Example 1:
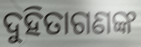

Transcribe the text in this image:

ଦୁହିତାଗଣଙ୍କ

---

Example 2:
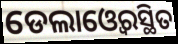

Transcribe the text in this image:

ଡେଲାଓ୍ବେରସ୍ଥିତ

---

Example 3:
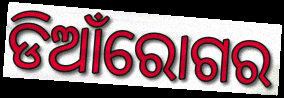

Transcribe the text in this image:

ଡିଆଁରୋଗର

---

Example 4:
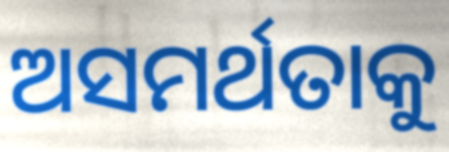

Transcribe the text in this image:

ଅସମର୍ଥତାକୁ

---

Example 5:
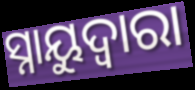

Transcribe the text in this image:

ସ୍ନାୟୁଦ୍ଵାରା